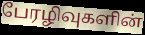
பேரழிவுகளின்